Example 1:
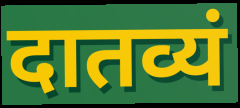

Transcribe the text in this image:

दातव्यं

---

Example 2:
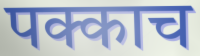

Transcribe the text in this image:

पक्काच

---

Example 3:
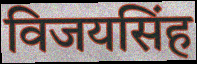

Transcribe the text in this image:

विजयसिंह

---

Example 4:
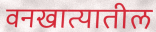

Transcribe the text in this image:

वनखात्यातील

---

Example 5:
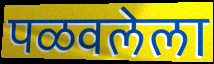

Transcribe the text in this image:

पळवलेला